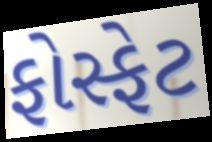
ફોસ્ફેટ